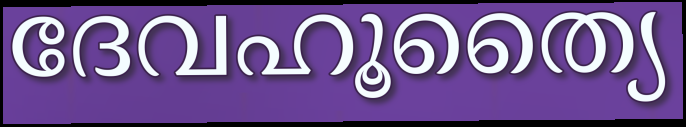
ദേവഹൂത്യൈ